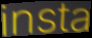
insta